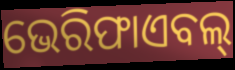
ଭେରିଫାଏବଲ୍